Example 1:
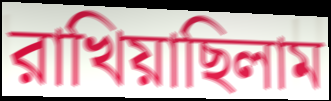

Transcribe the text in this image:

রাখিয়াছিলাম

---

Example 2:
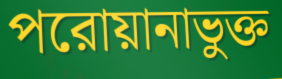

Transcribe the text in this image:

পরোয়ানাভুক্ত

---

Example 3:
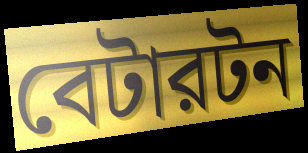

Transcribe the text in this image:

বেটারটন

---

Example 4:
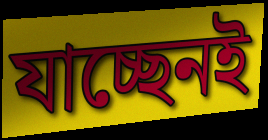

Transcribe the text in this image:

যাচ্ছেনই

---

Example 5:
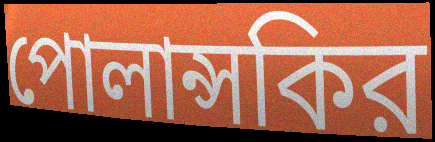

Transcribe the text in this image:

পোলান্সকির